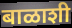
बाळाशी